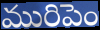
మురిపెం